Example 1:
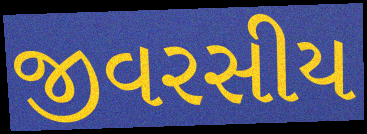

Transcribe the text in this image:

જીવરસીય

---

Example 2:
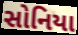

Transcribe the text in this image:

સોનિયા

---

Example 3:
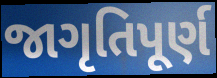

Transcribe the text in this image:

જાગૃતિપૂર્ણ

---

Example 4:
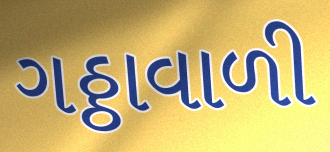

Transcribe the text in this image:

ગઠ્ઠાવાળી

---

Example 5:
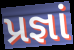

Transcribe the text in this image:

પ્રજ્ઞાં